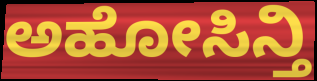
ಅಹೋಸಿನ್ತಿ